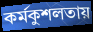
কর্মকুশলতায়